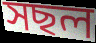
সছল